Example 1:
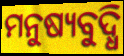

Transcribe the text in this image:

ମନୁଷ୍ୟବୁଦ୍ଧି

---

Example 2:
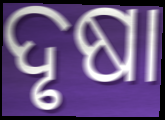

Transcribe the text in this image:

ଦୃଷା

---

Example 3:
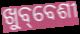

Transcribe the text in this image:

ଖୁବ୍‌ବେଶୀ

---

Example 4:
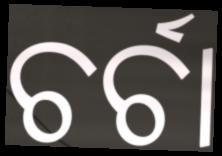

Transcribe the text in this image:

ଚର୍ଚା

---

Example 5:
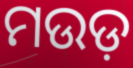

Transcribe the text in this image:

ମଉଡ଼